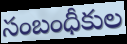
సంబంధీకుల